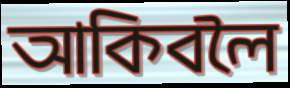
আকিবলৈ